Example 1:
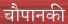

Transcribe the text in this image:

चौपानकी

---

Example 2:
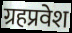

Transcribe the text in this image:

ग्रहप्रवेश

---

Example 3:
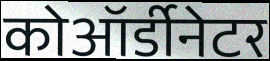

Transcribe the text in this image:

कोऑर्डीनेटर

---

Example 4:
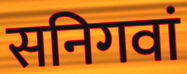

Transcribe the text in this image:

सनिगवां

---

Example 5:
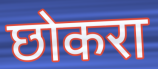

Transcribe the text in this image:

छोकरा